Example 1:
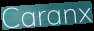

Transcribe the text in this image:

Caranx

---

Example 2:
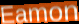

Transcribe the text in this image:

Eamon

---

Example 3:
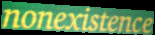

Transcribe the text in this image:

nonexistence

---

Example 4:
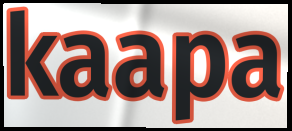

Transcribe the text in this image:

kaapa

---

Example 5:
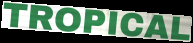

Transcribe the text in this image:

TROPICAL